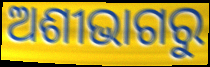
ଅଶୀଭାଗରୁ